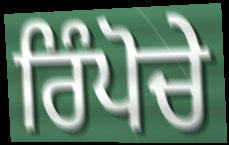
ਰਿੰਪੋਚੇ